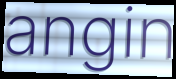
angin